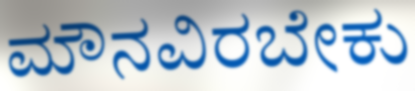
ಮೌನವಿರಬೇಕು